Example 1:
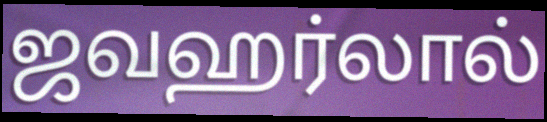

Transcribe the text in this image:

ஜவஹர்லால்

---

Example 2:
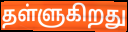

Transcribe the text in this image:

தள்ளுகிறது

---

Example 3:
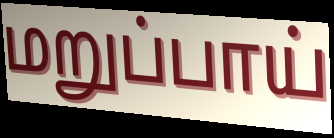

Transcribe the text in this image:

மறுப்பாய்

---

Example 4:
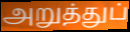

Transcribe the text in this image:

அறுத்துப்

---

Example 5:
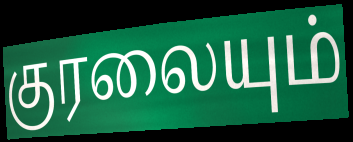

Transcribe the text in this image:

குரலையும்